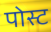
पोस्‍ट